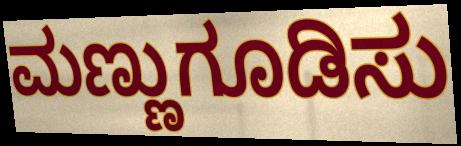
ಮಣ್ಣುಗೂಡಿಸು